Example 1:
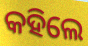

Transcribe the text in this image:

କହିଲେ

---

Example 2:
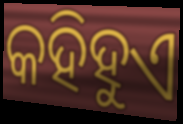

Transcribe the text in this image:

କହିହୁଏ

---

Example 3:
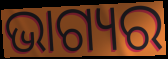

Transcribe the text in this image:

ଭାଗ୍ୟର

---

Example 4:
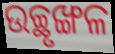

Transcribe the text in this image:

ଉଚ୍ଛୃଙ୍ଖଳ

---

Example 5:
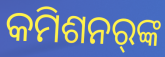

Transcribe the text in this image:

କମିଶନର୍‌ଙ୍କ